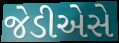
જેડીએસે